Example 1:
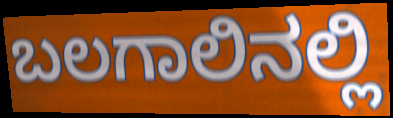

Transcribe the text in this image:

ಬಲಗಾಲಿನಲ್ಲಿ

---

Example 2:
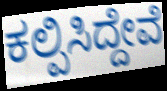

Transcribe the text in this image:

ಕಲ್ಪಿಸಿದ್ದೇವೆ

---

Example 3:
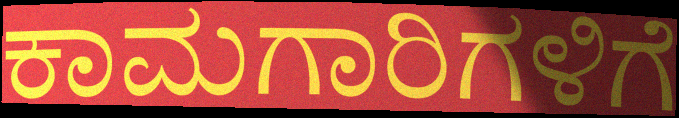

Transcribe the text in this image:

ಕಾಮಗಾರಿಗಳಿಗೆ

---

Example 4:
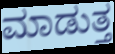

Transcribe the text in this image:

ಮಾಡುತ್ತ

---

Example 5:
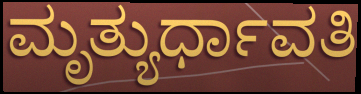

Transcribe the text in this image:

ಮೃತ್ಯುರ್ಧಾವತಿ